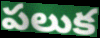
పలుక